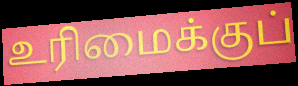
உரிமைக்குப்